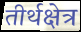
तीर्थक्षेत्र